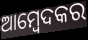
ଆମ୍ବେଦକର